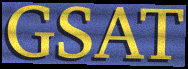
GSAT